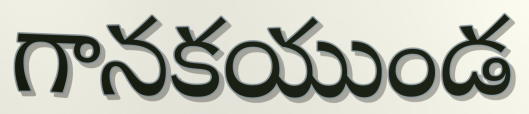
గానకయుండ